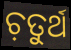
ଚ଼ତୁର୍ଥ